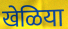
खेळिया